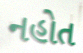
નહોત